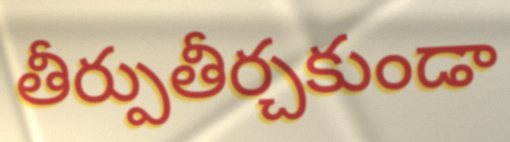
తీర్పుతీర్చకుండా